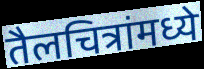
तैलचित्रांमध्ये